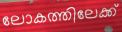
ലോകത്തിലേക്ക്